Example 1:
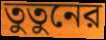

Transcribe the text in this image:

তুতুনের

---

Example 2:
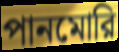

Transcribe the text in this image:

পানমোরি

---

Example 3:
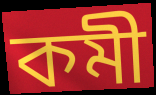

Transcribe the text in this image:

কমী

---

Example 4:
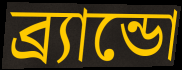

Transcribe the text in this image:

ব্র্যান্ডো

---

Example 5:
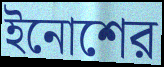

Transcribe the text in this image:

ইনোশের